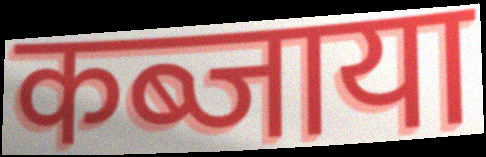
कब्जाया